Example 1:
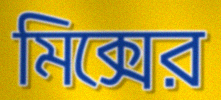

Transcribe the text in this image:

মিক্সের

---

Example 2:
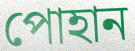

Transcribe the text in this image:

পোহান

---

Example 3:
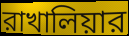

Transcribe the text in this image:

রাখালিয়ার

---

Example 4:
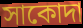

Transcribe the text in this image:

সাকোদা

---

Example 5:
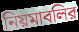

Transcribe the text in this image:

নিয়মাবলির